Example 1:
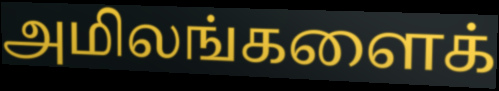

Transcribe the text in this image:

அமிலங்களைக்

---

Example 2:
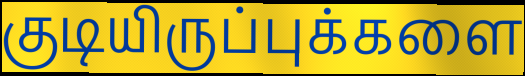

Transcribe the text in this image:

குடியிருப்புக்களை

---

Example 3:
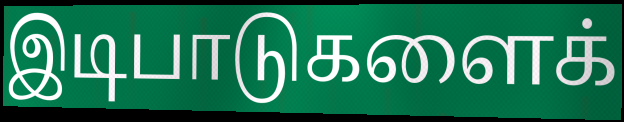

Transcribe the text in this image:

இடிபாடுகளைக்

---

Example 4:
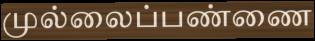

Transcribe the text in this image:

முல்லைப்பண்ணை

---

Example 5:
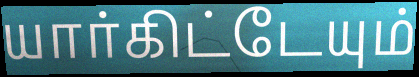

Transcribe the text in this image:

யார்கிட்டேயும்